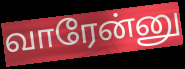
வாரேன்னு